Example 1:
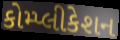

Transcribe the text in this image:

કોમ્પ્લીકેશન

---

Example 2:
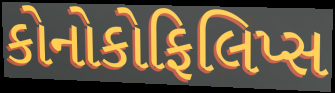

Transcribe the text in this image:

કોનોકોફિલિપ્સ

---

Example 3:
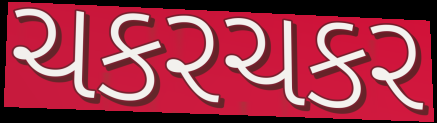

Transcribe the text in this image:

ચકરચકર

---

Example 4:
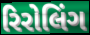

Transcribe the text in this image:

રિરોલિંગ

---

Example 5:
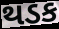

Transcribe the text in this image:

થડક